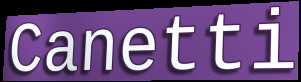
Canetti